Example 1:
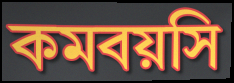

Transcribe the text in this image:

কমবয়সি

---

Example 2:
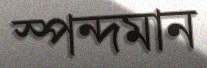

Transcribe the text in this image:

স্পন্দমান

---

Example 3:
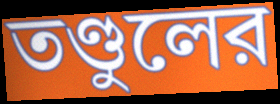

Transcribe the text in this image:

তণ্ডুলের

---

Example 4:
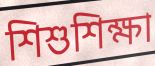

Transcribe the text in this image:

শিশুশিক্ষা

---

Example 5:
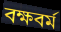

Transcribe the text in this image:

বক্ষবর্ম